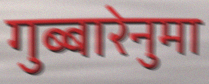
गुब्बारेनुमा